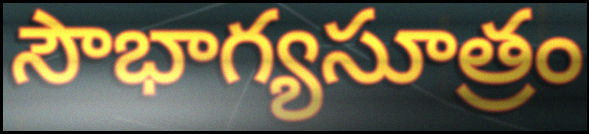
సౌభాగ్యసూత్రం